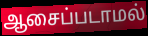
ஆசைப்படாமல்